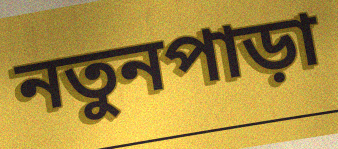
নতুনপাড়া